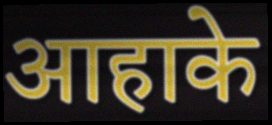
आहाके